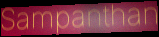
Sampanthan